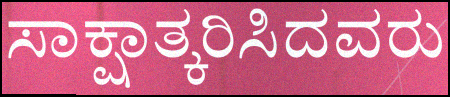
ಸಾಕ್ಷಾತ್ಕರಿಸಿದವರು